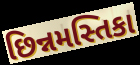
છિન્નમસ્તિકા